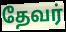
தேவர்